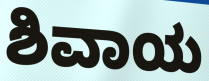
ಶಿವಾಯ